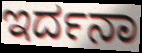
ಇರ್ದನಾ